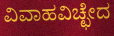
ವಿವಾಹವಿಚ್ಛೇದ